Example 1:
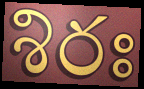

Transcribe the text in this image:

శిరః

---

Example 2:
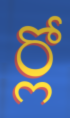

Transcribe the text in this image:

ర్లో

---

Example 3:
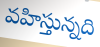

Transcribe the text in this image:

వహిస్తున్నది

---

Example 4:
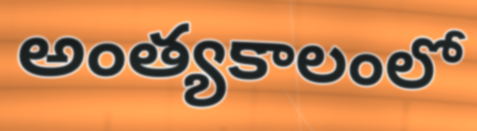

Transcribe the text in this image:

అంత్యకాలంలో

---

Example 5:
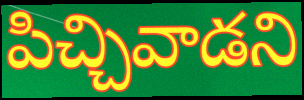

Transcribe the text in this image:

పిచ్చివాడని